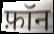
फ़ॉन